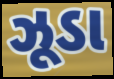
ઝૂડા